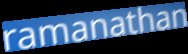
ramanathan